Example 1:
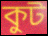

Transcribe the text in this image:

কুট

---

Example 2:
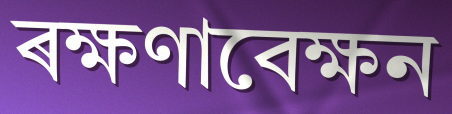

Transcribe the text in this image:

ৰক্ষণাবেক্ষন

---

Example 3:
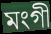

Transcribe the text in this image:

মংগী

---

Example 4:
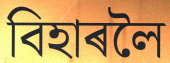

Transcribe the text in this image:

বিহাৰলৈ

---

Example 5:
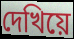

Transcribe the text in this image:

দেখিয়ে